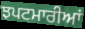
ਝਪਟਮਾਰੀਆਂ